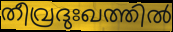
തീവ്രദുഃഖത്തിൽ